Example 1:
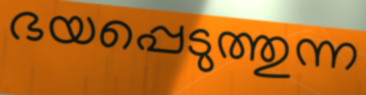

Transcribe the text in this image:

ഭയപ്പെടുത്തുന്ന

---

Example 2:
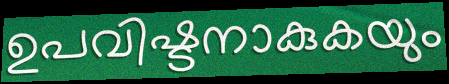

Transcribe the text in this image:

ഉപവിഷ്ടനാകുകയും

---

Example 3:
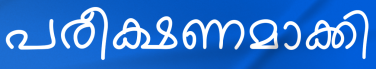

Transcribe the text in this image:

പരീക്ഷണമാക്കി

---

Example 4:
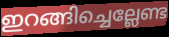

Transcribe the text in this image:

ഇറങ്ങിച്ചെല്ലേണ്ട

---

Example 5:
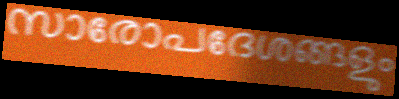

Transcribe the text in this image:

സാരോപദേശങ്ങളും